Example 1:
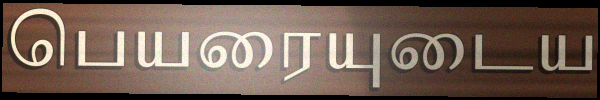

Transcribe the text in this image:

பெயரையுடைய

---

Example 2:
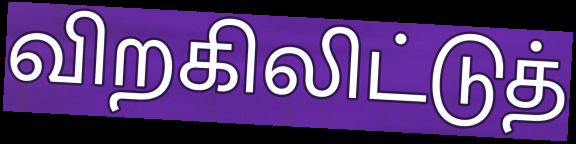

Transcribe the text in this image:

விறகிலிட்டுத்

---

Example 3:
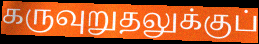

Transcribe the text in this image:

கருவுறுதலுக்குப்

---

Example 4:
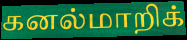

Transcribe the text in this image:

கனல்மாறிக்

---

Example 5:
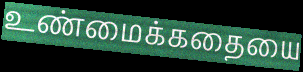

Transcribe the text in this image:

உண்மைக்கதையை